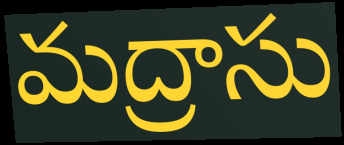
మద్రాసు